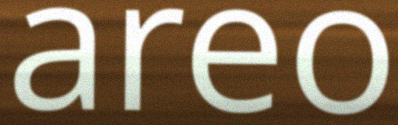
areo